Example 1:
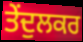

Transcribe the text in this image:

ਤੇਂਦੁਲਕਰ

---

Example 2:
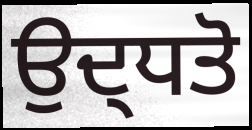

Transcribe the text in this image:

ਉਦ੍ਧਤੋ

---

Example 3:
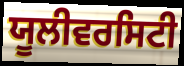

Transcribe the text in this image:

ਯੂਲੀਵਰਸਿਟੀ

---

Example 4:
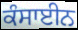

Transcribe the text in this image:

ਕੰਸਾਈਨ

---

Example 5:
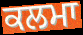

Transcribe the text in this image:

ਕਲਮਾ